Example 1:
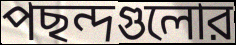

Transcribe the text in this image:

পছন্দগুলোর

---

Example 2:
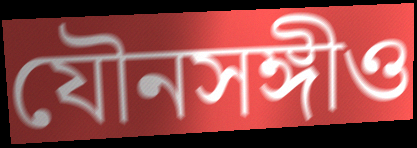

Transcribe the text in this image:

যৌনসঙ্গীও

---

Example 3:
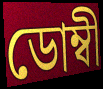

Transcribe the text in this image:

ডোম্বী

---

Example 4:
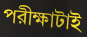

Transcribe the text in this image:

পরীক্ষাটাই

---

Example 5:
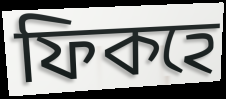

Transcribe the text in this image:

ফিকহে